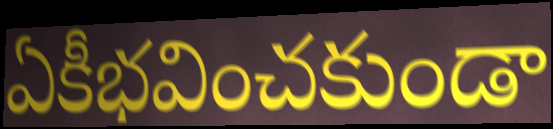
ఏకీభవించకుండా